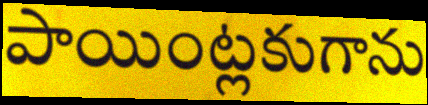
పాయింట్లకుగాను